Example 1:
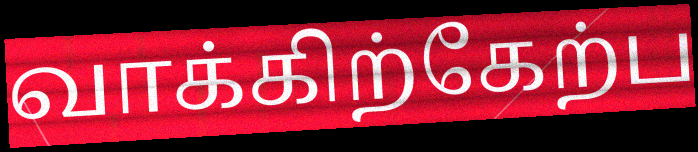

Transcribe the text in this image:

வாக்கிற்கேற்ப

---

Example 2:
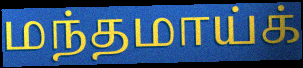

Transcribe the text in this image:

மந்தமாய்க்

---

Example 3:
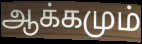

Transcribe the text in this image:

ஆக்கமும்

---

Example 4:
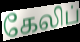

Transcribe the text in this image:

கேலிப்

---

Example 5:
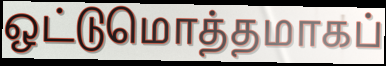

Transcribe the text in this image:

ஒட்டுமொத்தமாகப்